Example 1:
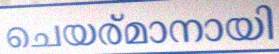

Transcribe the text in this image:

ചെയര്മാനായി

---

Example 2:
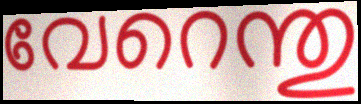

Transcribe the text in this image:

വേറെന്തു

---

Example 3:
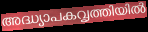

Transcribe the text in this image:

അദ്ധ്യാപകവൃത്തിയിൽ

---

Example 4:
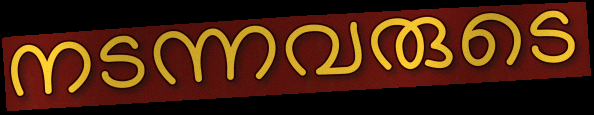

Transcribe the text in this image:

നടന്നവരുടെ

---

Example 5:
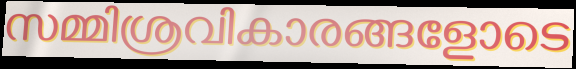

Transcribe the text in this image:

സമ്മിശ്രവികാരങ്ങളോടെ